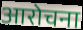
आरोचना